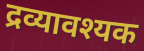
द्रव्यावश्यक